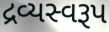
દ્રવ્યસ્વરૂપ